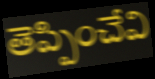
తెప్పించేవి